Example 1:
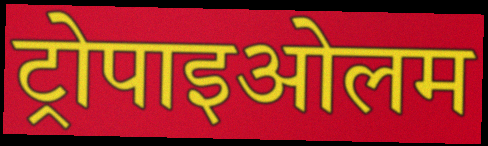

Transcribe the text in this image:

ट्रोपाइओलम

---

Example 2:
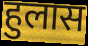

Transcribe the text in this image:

हुलास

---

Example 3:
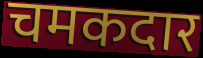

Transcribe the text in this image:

चमकदार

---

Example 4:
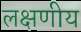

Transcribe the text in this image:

लक्षणीय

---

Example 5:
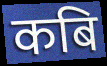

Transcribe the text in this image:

कबि